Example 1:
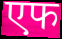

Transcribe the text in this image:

एफ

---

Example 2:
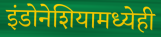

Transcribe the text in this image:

इंडोनेशियामध्येही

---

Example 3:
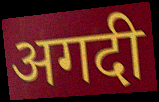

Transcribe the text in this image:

अगदी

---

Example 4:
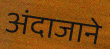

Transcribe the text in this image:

अंदाजाने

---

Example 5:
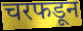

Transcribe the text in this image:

चरफडून